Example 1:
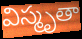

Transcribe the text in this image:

విస్మృతా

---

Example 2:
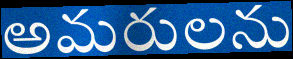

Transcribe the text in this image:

అమరులను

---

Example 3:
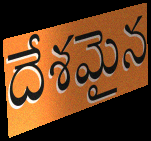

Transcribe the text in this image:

దేశమైన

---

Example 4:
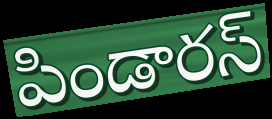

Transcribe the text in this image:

పిండారస్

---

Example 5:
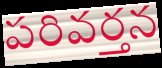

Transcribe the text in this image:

పరివర్తన